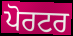
ਪੋਰਟਰ